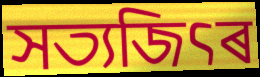
সত্যজিৎৰ